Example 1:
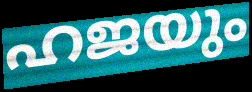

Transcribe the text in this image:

ഹജയും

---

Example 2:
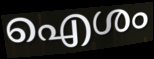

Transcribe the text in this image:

ഐശം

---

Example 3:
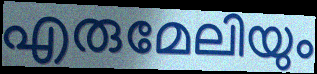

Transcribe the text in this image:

എരുമേലിയും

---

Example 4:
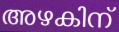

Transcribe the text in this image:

അഴകിന്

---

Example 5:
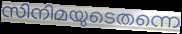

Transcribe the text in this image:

സിനിമയുടെതന്നെ